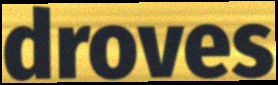
droves